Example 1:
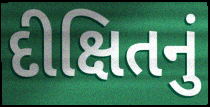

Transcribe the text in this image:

દીક્ષિતનું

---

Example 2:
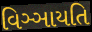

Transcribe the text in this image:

વિઞ્ઞાયતિ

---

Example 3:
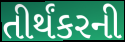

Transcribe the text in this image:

તીર્થંકરની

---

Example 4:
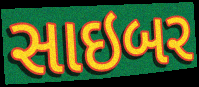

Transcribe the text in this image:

સાઇબર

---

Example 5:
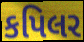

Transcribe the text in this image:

કપિલર